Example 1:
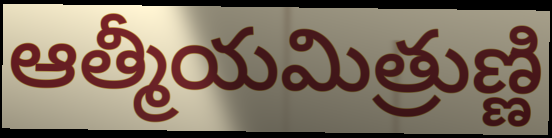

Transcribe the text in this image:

ఆత్మీయమిత్రుణ్ణి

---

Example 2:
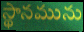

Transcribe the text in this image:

స్థానమును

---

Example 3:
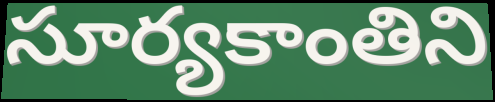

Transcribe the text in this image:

సూర్యకాంతిని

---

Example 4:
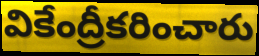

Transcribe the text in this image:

వికేంద్రీకరించారు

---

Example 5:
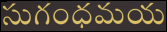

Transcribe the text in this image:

సుగంధమయ